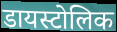
डायस्टोलिक